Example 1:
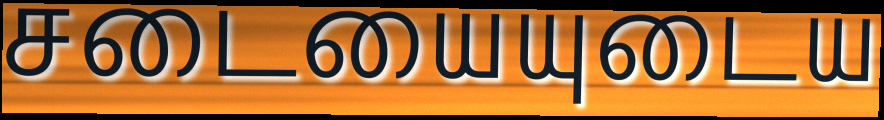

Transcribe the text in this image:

சடையையுடைய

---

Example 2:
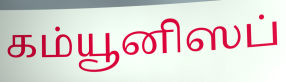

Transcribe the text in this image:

கம்யூனிஸப்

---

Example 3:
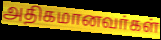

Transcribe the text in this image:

அதிகமானவர்கள்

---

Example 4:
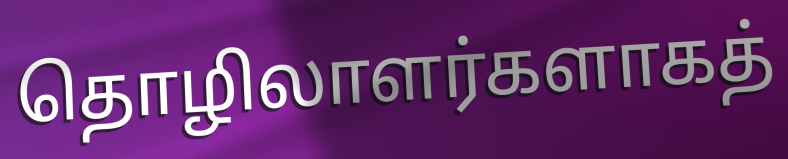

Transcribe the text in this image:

தொழிலாளர்களாகத்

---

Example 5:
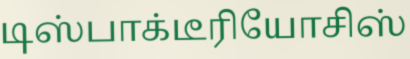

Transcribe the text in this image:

டிஸ்பாக்டீரியோசிஸ்